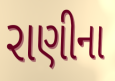
રાણીના